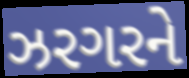
ઝરગરને